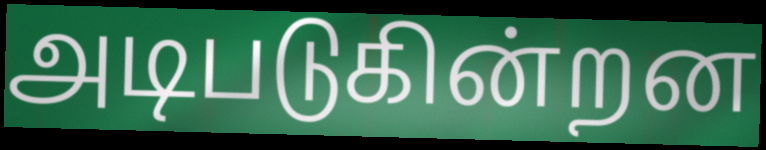
அடிபடுகின்றன